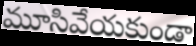
మూసివేయకుండా